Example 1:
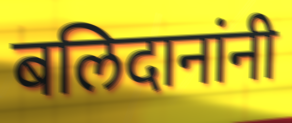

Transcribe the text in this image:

बलिदानांनी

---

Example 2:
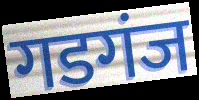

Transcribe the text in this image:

गडगंज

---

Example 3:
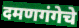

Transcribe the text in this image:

दमणगंगेचे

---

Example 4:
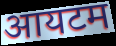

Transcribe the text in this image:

आयटम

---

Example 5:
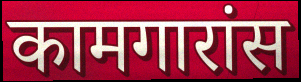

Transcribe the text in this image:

कामगारांस